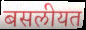
बसलीयत